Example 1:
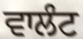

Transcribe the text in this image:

ਵਾਲੰਟ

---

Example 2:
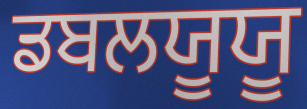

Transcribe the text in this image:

ਡਬਲਯੂਯੂ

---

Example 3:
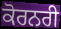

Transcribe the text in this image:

ਕੋਰਨਰੀ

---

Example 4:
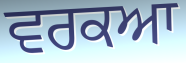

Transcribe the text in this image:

ਵਰਕਆ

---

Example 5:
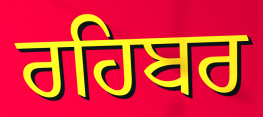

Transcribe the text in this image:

ਰਹਿਬਰ